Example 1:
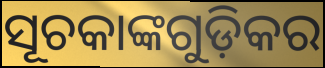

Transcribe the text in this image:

ସୂଚକାଙ୍କଗୁଡ଼ିକର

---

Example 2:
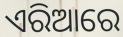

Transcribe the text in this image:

ଏରିଆରେ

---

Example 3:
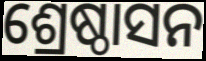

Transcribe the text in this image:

ଶ୍ରେଷ୍ଠାସନ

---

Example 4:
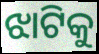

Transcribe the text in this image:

ଝାଟିକୁ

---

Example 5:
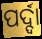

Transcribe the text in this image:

ପର୍ଦ୍ଦା